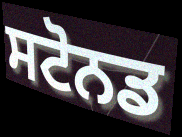
ਸਟੋਨਡ